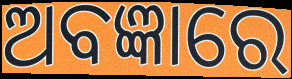
ଅବଜ୍ଞାରେ